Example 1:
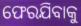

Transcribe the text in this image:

ଫେରଯିବାକୁ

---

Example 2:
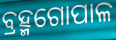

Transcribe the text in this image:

ବ୍ରହ୍ମଗୋପାଳ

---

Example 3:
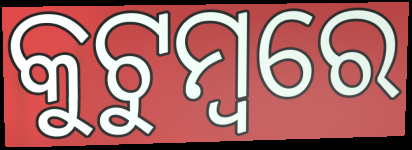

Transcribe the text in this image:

କୁଟୁମ୍ଵରେ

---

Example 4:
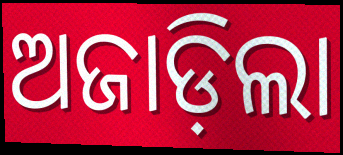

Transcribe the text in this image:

ଅଜାଡ଼ିଲା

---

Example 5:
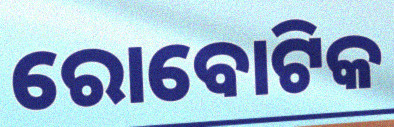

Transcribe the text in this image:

ରୋବୋଟିକ